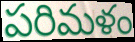
పరిమళం